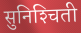
सुनिश्चिती